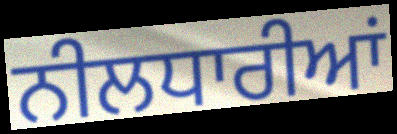
ਨੀਲਧਾਰੀਆਂ